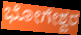
ಭೋಗೇಶ್ವರ